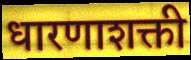
धारणाशक्ती